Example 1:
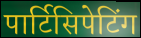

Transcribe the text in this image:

पार्टिसिपेटिंग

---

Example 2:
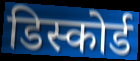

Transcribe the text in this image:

डिस्कोर्ड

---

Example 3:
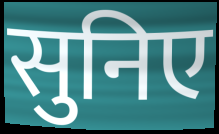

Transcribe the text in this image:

सुनिए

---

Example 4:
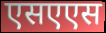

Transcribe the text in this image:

एसएएस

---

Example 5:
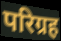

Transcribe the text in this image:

परिग्रह